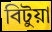
বিটুয়া